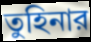
তুহিনার